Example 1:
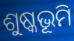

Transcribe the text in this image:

ଶୁଷ୍କଭୂମି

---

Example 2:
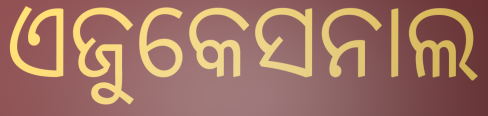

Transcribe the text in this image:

ଏଜୁକେସନାଲ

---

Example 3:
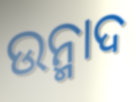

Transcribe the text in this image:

ଉନ୍ମାଦ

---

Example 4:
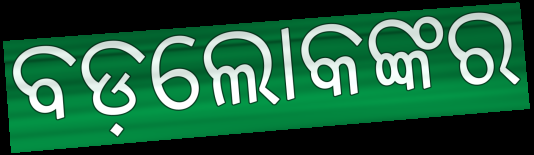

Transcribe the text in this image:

ବଡ଼ଲୋକଙ୍କର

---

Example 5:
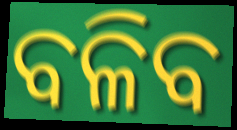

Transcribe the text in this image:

ବଳିବ